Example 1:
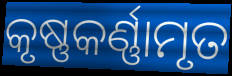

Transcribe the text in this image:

କୃଷ୍ଣକର୍ଣ୍ଣାମୃତ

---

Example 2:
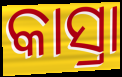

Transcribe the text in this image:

କାସ୍ରା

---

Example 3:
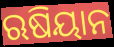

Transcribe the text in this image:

ଋଷିୟାନ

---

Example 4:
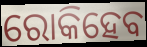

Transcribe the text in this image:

ରୋକିହେବ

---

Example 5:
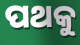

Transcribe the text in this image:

ପଥକୁ